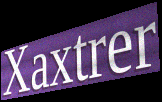
Xaxtrer